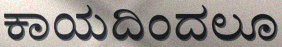
ಕಾಯದಿಂದಲೂ